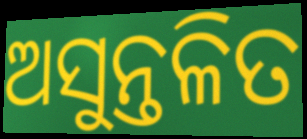
ଅସୁନ୍ତଳିତ